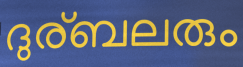
ദുര്ബലരും